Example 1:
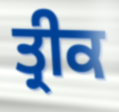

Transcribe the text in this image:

ਤ੍ਰੀਕ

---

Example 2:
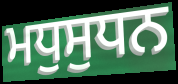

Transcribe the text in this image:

ਮਧੁਸੁਧਨ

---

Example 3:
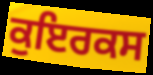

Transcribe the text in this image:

ਕੁਇਰਕਸ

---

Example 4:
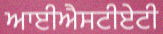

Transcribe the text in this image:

ਆਈਐਸਟੀਏਟੀ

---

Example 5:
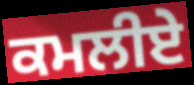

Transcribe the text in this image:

ਕਮਲੀਏ